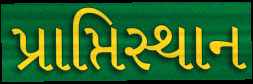
પ્રાપ્તિસ્થાન